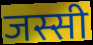
जस्सी